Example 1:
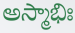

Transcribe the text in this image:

అస్మాభిః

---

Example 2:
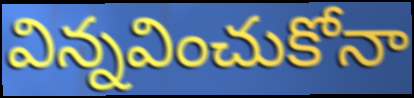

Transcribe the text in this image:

విన్నవించుకోనా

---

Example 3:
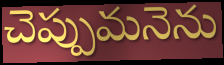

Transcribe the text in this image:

చెప్పుమనెను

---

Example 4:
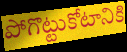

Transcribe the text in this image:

పోగొట్టుకోటానికి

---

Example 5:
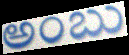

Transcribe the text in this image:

అంబు